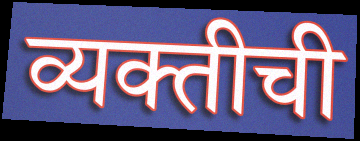
व्यक्तीची